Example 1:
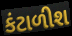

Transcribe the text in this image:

કંટાળીશ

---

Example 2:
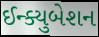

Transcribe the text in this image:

ઈન્ક્યુબેશન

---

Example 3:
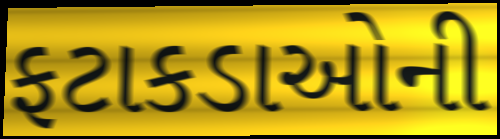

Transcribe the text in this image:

ફટાકડાઓની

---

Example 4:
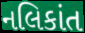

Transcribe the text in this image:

નલિકાંત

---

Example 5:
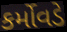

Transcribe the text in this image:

કર્મોવડે